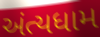
અંત્યધામ